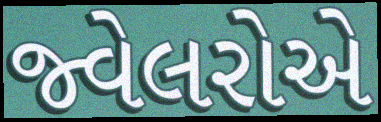
જ્વેલરોએ